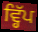
ਵ੍ਹਿੱਪ